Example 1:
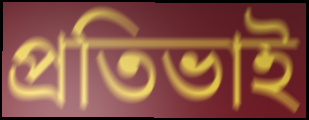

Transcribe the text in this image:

প্ৰতিভাই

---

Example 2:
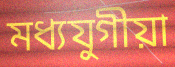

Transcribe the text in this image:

মধ্যযুগীয়া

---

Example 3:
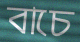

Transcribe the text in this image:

বাচে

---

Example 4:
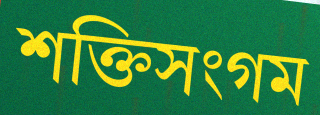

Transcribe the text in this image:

শক্তিসংগম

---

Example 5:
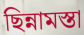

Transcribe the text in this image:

ছিন্নামস্তা